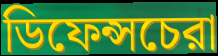
ডিফেন্সচেরা